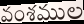
వంశముల